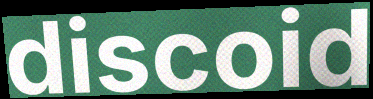
discoid